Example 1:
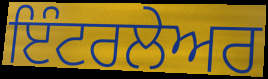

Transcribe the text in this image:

ਇੰਟਰਲੇਅਰ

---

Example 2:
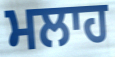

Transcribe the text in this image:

ਮਲਾਹ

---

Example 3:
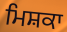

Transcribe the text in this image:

ਮਿਸ਼ਕਾ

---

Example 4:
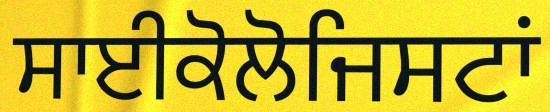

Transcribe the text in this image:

ਸਾਈਕੋਲੋਜਿਸਟਾਂ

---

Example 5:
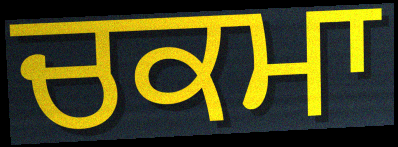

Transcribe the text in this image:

ਚਕਮਾ